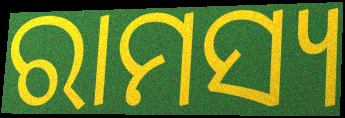
ରାମସ୍ୟ